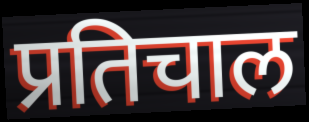
प्रतिचाल